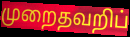
முறைதவறிப்